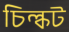
চিল্কট